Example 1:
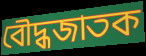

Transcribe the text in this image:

বৌদ্ধজাতক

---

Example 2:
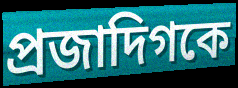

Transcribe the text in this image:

প্রজাদিগকে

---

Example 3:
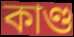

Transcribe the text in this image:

কাণ্ড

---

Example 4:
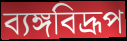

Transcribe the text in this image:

ব্যঙ্গবিদ্রূপ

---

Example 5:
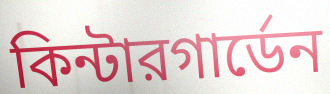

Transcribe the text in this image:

কিন্টারগার্ডেন